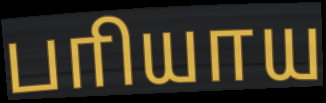
பரியாய